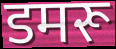
डमरू